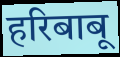
हरिबाबू